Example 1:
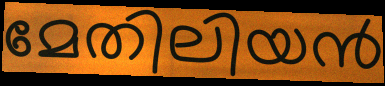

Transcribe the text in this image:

മേതിലിയൻ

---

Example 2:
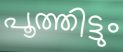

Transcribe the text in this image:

പൂത്തിട്ടും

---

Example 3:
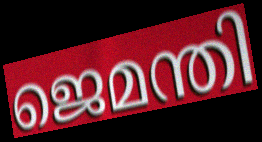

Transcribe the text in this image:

ജെമന്തി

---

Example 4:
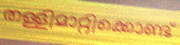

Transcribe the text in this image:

തള്ളിമാറ്റിക്കൊണ്ട്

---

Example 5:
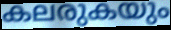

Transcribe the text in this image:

കലരുകയും